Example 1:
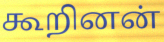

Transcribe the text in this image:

கூறினன்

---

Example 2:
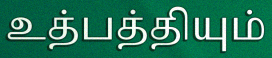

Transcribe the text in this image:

உத்பத்தியும்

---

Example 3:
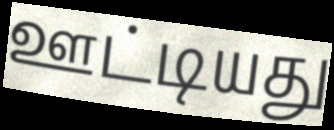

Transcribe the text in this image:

ஊட்டியது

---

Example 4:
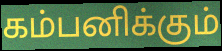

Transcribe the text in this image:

கம்பனிக்கும்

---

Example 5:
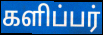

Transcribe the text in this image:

களிப்பர்